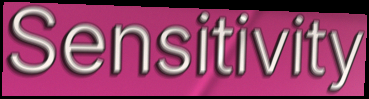
Sensitivity